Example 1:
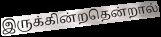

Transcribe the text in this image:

இருக்கின்றதென்றால்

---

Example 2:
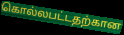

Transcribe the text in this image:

கொல்லபட்டதற்கான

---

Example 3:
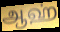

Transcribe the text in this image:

ஆஹ்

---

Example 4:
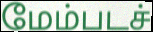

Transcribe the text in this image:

மேம்படச்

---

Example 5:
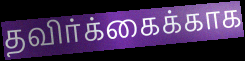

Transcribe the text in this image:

தவிர்க்கைக்காக